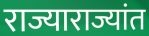
राज्याराज्यांत